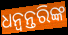
ଧନ୍ୱନ୍ତରିଙ୍କ